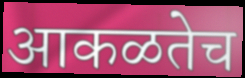
आकळतेच